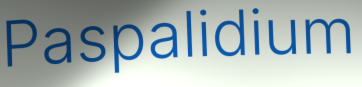
Paspalidium